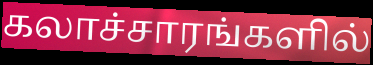
கலாச்சாரங்களில்